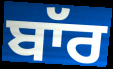
ਬਾੱਰ